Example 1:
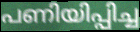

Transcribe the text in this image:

പണിയിപ്പിച്ച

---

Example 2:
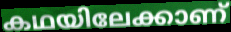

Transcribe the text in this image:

കഥയിലേക്കാണ്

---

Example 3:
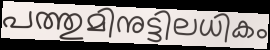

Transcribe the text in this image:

പത്തുമിനുട്ടിലധികം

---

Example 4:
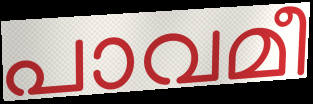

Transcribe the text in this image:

പാവമീ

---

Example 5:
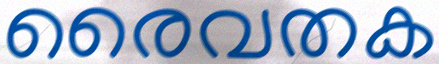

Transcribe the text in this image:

രൈവതക